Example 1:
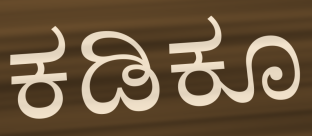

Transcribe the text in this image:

ಕಡಿಕೂ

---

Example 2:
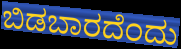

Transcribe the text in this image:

ಬಿಡಬಾರದೆಂದು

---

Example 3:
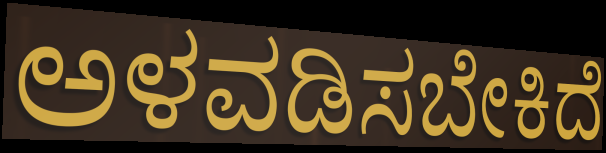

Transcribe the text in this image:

ಅಳವಡಿಸಬೇಕಿದೆ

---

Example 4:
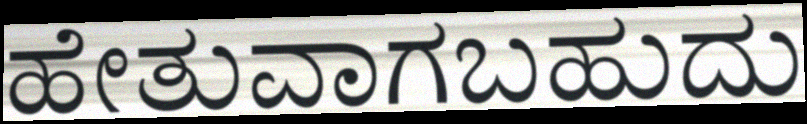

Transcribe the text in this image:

ಹೇತುವಾಗಬಹುದು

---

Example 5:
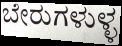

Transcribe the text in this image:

ಬೇರುಗಳುಳ್ಳ